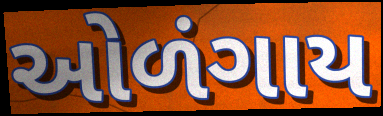
ઓળંગાય